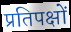
प्रतिपक्षों